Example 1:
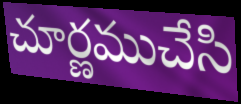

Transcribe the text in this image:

చూర్ణముచేసి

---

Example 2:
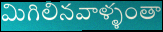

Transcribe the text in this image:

మిగిలినవాళ్ళంతా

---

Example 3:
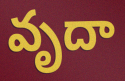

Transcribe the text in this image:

వృదా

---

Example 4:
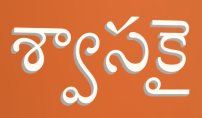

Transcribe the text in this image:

శ్వాసకై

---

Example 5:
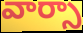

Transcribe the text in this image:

వార్సా